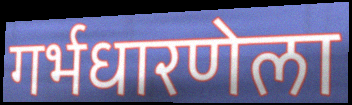
गर्भधारणेला